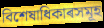
বিশেষাধিকাৰসমূহ